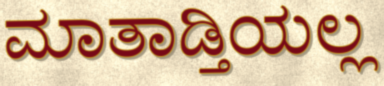
ಮಾತಾಡ್ತಿಯಲ್ಲ